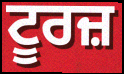
ਟੂਰਜ਼